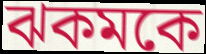
ঝকমকে